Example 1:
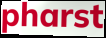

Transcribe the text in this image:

pharst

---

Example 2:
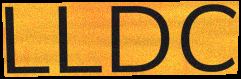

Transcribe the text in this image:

LLDC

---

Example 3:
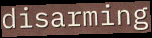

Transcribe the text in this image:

disarming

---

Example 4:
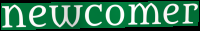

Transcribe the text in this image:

newcomer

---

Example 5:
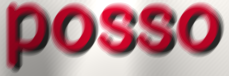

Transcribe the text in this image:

posso